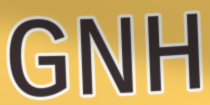
GNH